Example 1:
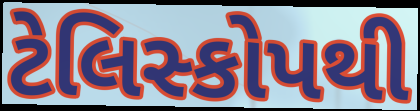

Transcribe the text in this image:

ટેલિસ્કોપથી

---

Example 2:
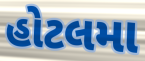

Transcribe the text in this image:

હોટલમા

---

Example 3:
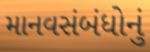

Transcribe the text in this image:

માનવસંબંધોનું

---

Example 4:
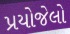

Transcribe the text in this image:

પ્રયોજેલો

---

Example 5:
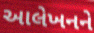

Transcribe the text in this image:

આલેખનને